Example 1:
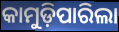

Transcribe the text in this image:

କାମୁଡ଼ିପାରିଲା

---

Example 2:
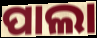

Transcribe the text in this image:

ପାଲା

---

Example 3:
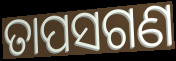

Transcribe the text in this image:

ତାପସଗଣ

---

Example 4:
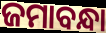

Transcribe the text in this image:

ଜମାବନ୍ଧା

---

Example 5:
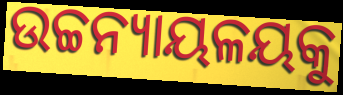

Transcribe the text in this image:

ଉଚ୍ଚନ୍ୟାୟଳୟକୁ